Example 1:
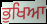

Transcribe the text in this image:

ਭੁਖਿਆ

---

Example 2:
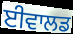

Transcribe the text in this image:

ਈਵਾਲਡ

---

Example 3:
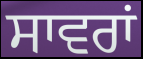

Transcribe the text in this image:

ਸਾਵਰਾਂ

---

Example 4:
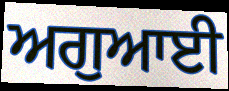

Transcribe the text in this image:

ਅਗੁਆਈ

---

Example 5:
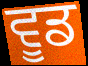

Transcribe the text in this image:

ਵੂਡ